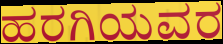
ಹರಗಿಯವರ